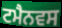
ਟਮੈਨਵਸ